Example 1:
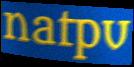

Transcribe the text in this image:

natpu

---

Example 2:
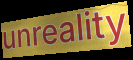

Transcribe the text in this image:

unreality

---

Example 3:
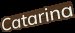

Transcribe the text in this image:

Catarina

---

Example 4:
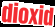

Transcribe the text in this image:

dioxid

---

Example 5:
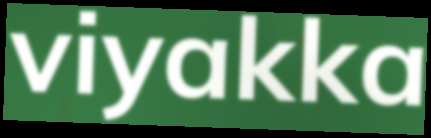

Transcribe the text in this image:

viyakka